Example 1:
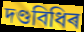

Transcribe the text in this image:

দণ্ডবিধিৰ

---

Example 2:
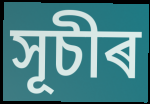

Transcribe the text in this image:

সূচীৰ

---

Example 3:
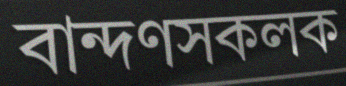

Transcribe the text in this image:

বান্দণসকলক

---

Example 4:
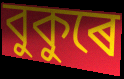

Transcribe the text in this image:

বুকুৰে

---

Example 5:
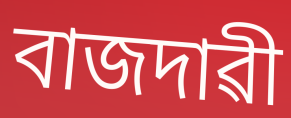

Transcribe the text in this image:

বাজদাৱী